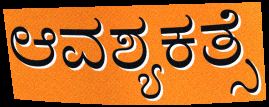
ಆವಶ್ಯಕತ್ಸೆ